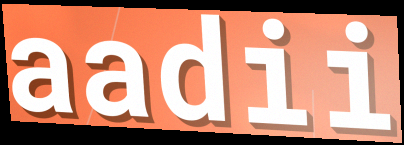
aadii